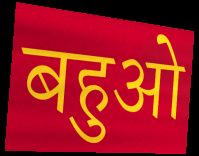
बहुओ